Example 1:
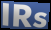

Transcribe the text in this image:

IRs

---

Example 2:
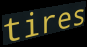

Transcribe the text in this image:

tires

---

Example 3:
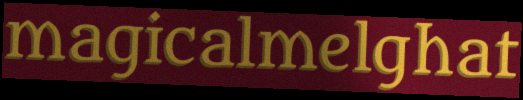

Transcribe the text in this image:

magicalmelghat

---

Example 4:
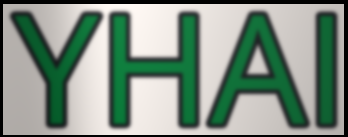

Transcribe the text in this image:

YHAI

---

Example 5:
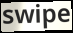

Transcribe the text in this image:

swipe